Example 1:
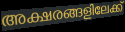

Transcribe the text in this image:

അക്ഷരങ്ങളിലേക്ക്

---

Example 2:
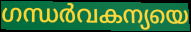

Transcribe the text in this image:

ഗന്ധർവകന്യയെ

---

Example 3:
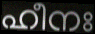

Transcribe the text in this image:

ഹീനഃ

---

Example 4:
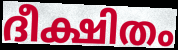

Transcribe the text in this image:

ദീക്ഷിതം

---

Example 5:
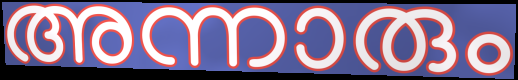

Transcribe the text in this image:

അന്നാരും